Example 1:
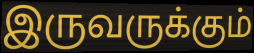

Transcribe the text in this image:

இருவருக்கும்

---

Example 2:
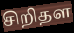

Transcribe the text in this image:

சிறிதள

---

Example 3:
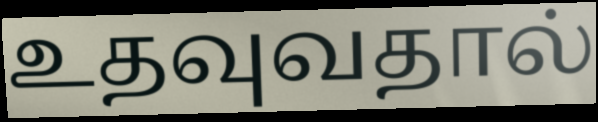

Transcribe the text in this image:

உதவுவதால்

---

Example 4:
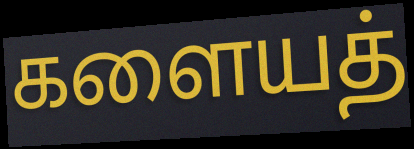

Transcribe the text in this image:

களையத்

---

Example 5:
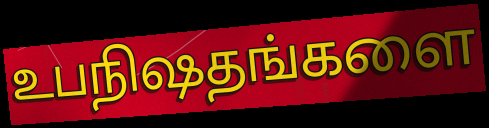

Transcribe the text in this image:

உபநிஷதங்களை